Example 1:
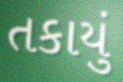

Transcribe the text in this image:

તકાયું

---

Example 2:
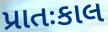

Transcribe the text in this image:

પ્રાતઃકાલ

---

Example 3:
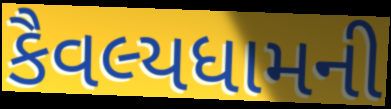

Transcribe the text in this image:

કૈવલ્યધામની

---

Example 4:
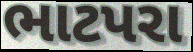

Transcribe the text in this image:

ભાટપરા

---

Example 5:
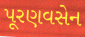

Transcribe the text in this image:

પૂરણવસેન